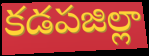
కడపజిల్లా